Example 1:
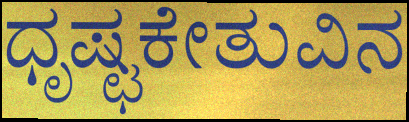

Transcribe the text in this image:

ಧೃಷ್ಟಕೇತುವಿನ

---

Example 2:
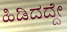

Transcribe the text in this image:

ಹಿಡಿದದ್ದೇ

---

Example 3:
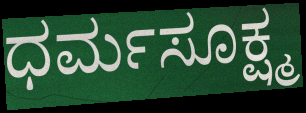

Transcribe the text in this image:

ಧರ್ಮಸೂಕ್ಷ್ಮ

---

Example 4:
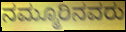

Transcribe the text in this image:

ನಮ್ಮೂರಿನವರು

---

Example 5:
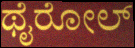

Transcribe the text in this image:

ಥೈರೋಲ್